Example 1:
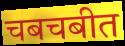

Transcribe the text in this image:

चबचबीत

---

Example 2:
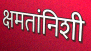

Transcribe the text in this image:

क्षमतांनिशी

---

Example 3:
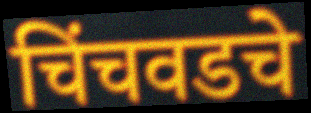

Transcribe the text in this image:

चिंचवडचे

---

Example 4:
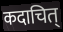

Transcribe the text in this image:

कदाचित्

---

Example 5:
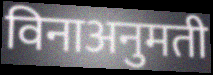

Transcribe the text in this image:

विनाअनुमती